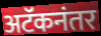
अटॅकनंतर